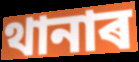
থানাৰ